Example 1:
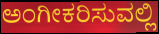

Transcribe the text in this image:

ಅಂಗೀಕರಿಸುವಲ್ಲಿ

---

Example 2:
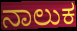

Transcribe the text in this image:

ನಾಲುಕ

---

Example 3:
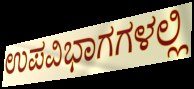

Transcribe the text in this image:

ಉಪವಿಭಾಗಗಳಲ್ಲಿ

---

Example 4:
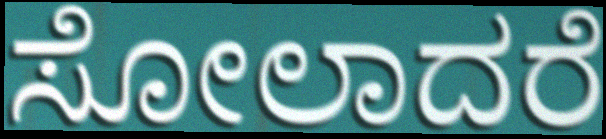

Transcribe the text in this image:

ಸೋಲಾದರೆ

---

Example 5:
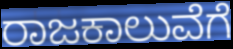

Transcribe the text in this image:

ರಾಜಕಾಲುವೆಗೆ